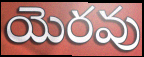
యెరవు